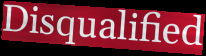
Disqualified